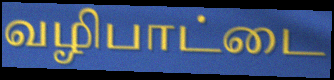
வழிபாட்டை